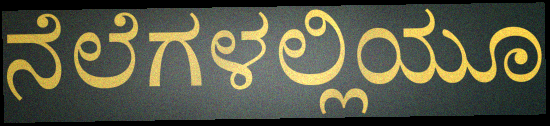
ನೆಲೆಗಳಲ್ಲಿಯೂ